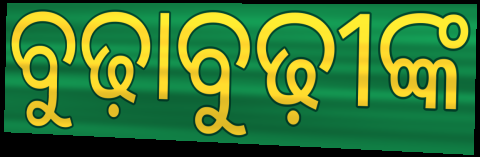
ବୁଢ଼ାବୁଢ଼ୀଙ୍କ